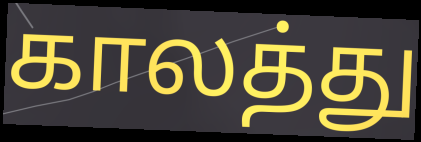
காலத்து